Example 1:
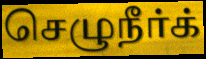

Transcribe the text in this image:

செழுநீர்க்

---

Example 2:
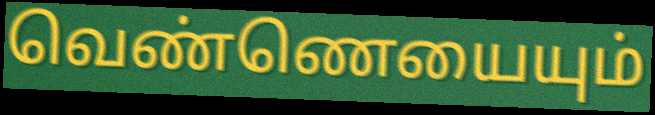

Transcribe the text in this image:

வெண்ணெயையும்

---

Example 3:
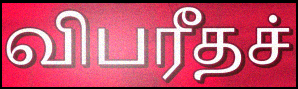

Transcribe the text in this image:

விபரீதச்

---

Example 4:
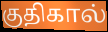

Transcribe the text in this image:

குதிகால்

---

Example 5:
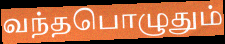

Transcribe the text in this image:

வந்தபொழுதும்